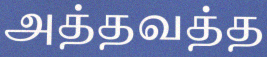
அத்தவத்த